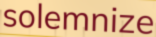
solemnize